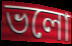
ভলো